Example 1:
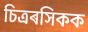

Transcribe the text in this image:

চিত্ৰৰসিকক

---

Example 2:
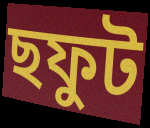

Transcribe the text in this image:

ছফুট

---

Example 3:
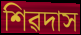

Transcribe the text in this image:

শিৱদাস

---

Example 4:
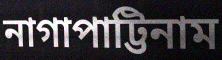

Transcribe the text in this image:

নাগাপাট্টিনাম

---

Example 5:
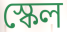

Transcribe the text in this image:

স্কেল